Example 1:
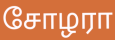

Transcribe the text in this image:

சோழரா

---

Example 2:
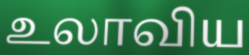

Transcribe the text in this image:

உலாவிய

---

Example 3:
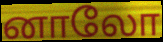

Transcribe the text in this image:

னாலோ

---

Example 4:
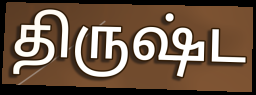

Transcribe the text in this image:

திருஷ்ட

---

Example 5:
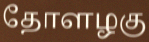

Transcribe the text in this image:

தோளழகு